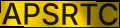
APSRTC